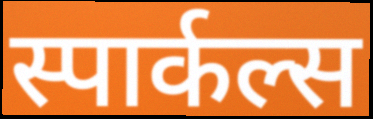
स्पार्कल्स